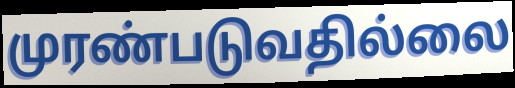
முரண்படுவதில்லை